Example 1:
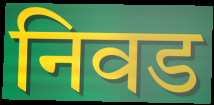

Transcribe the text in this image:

निवड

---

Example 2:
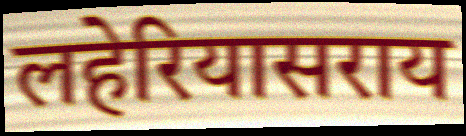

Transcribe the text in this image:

लहेरियासराय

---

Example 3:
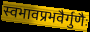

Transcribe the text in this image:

स्वभावप्रभवैर्गुणैः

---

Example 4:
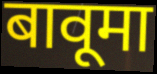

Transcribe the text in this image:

बावूमा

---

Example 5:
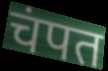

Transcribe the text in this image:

चंपत